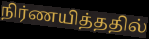
நிர்ணயித்ததில்